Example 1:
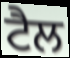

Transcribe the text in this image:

ਟੈਲ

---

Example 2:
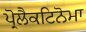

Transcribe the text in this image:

ਪ੍ਰੋਲੈਕਟਿਨੋਮਾ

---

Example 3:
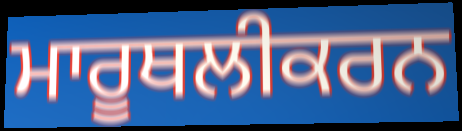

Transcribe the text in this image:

ਮਾਰੂਥਲੀਕਰਨ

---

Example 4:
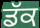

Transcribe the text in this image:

ਡੱਕ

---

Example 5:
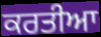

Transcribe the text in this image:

ਕਰਤੀਆ